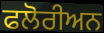
ਫਲੋਰੀਅਨ